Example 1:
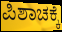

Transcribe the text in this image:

ಪಿಶಾಚಕ್ಕೆ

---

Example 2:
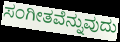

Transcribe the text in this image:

ಸಂಗೀತವೆನ್ನುವುದು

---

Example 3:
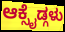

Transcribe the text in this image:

ಆಕ್ಸೈಡ್ಗಳು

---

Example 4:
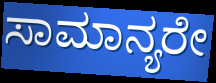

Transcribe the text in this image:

ಸಾಮಾನ್ಯರೇ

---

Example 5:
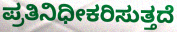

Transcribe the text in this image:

ಪ್ರತಿನಿಧೀಕರಿಸುತ್ತದೆ